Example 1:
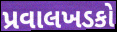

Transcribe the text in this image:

પ્રવાલખડકો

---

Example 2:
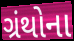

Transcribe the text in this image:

ગ્રંથોના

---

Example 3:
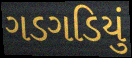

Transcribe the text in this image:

ગડગડિયું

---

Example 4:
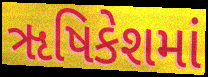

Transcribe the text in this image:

ૠષિકેશમાં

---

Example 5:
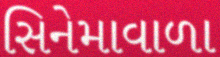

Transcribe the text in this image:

સિનેમાવાળા